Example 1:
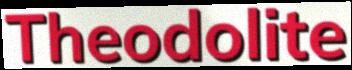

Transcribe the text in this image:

Theodolite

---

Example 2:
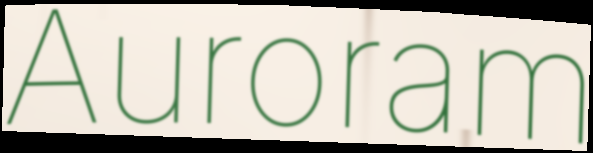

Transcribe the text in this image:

Auroram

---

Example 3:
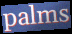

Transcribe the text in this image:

palms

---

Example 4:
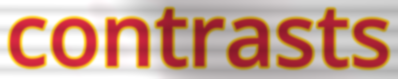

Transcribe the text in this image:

contrasts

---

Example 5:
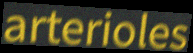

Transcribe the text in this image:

arterioles